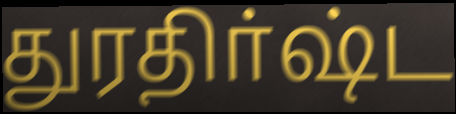
துரதிர்ஷ்ட